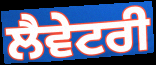
ਲੈਵੇਟਰੀ